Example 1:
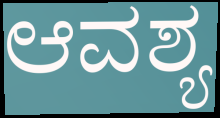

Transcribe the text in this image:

ಆವಶ್ಯ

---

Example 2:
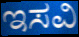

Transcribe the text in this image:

ಇಸವಿ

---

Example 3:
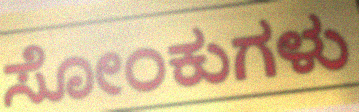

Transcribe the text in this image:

ಸೋಂಕುಗಳು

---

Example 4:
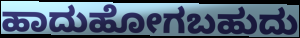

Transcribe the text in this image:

ಹಾದುಹೋಗಬಹುದು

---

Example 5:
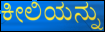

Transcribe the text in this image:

ಕೀಲಿಯನ್ನು